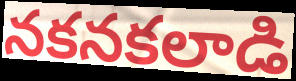
నకనకలాడి